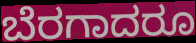
ಬೆರಗಾದರೂ